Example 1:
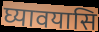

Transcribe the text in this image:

घ्यावयासि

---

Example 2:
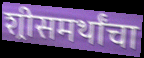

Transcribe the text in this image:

श्रीसमर्थांचा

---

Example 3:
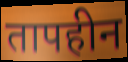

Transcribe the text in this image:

तापहीन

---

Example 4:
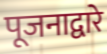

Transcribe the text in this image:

पूजनाद्वारे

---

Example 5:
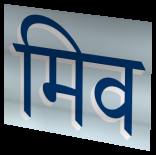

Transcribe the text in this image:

मिव